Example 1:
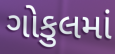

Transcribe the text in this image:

ગોકુલમાં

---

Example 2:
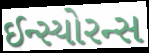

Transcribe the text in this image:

ઈન્સ્યોરન્સ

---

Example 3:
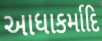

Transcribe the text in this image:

આધાકર્માદિ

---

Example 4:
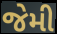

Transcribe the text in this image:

જેમી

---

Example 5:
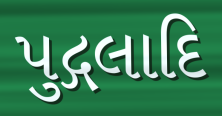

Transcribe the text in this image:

પુદ્ગલાદિ